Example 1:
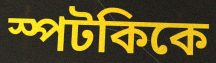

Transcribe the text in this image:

স্পটকিকে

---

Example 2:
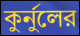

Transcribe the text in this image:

কুর্নুলের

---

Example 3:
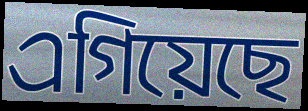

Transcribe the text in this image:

এগিয়েছে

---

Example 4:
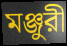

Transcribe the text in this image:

মঞ্জুরী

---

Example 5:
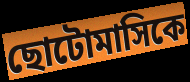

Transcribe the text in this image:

ছোটোমাসিকে